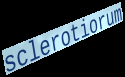
sclerotiorum